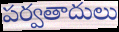
పర్వతాదులు